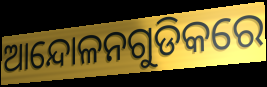
ଆନ୍ଦୋଳନଗୁଡିକରେ